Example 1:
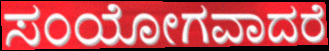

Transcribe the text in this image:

ಸಂಯೋಗವಾದರೆ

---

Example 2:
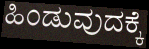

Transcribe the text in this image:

ಹಿಂಡುವುದಕ್ಕೆ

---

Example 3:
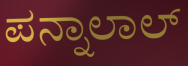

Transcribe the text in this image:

ಪನ್ನಾಲಾಲ್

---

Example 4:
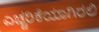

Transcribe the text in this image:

ಎಚ್ಚರಿಕೆಯಾಗಿರಲಿ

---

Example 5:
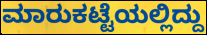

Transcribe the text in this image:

ಮಾರುಕಟ್ಟೆಯಲ್ಲಿದ್ದು